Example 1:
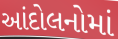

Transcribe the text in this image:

આંદોલનોમાં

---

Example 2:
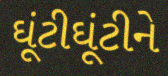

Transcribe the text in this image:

ઘૂંટીઘૂંટીને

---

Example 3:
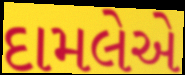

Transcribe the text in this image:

દામલેએ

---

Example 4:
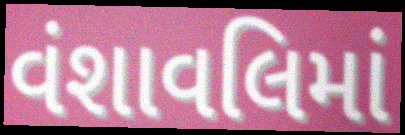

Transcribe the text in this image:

વંશાવલિમાં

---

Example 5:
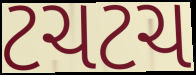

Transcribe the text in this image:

ટચટચ